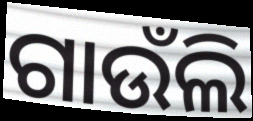
ଗାଉଁଲି